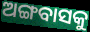
ଅଙ୍ଗବାସକୁ